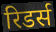
रिडर्स